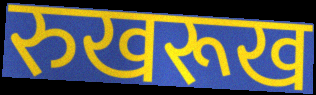
रुखरूख